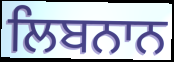
ਲਿਬਨਾਨ